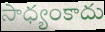
సాధ్యంకాదు